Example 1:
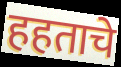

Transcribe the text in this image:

हहताचे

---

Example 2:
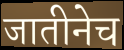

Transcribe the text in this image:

जातीनेच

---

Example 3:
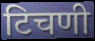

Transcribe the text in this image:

टिचणी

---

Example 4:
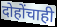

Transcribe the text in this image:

दोहोंचाही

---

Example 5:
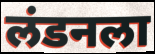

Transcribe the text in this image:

लंडनला